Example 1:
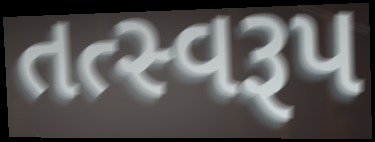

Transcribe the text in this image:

તત્સ્વરૂપ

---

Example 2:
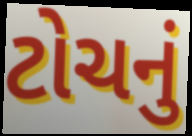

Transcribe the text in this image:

ટોચનું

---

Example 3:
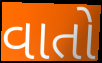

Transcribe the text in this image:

વાતો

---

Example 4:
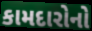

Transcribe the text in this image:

કામદારોનો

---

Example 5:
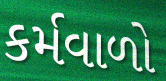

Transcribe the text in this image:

કર્મવાળો